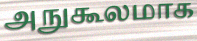
அநுகூலமாக